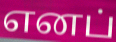
எனப்